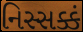
નિસ્સક્કં